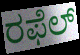
ರಫೆಲ್